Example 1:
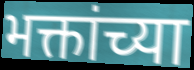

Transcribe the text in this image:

भक्तांच्या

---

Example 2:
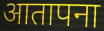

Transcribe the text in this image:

आतापना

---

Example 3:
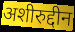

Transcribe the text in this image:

अशीरुद्दीन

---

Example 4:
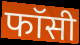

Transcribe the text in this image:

फॉसी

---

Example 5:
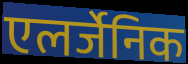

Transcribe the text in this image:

एलर्जेनिक